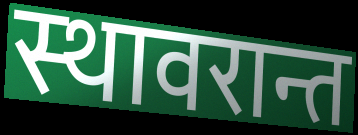
स्थावरान्त